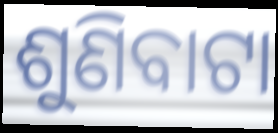
ଶୁଣିବାଟା